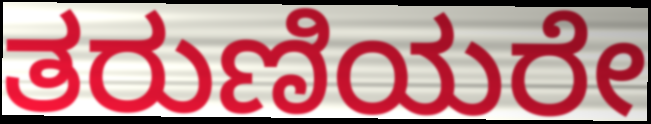
ತರುಣಿಯರೇ